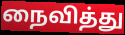
நைவித்து